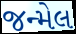
જન્મેલ